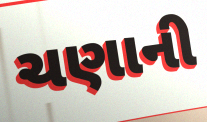
ચણાની